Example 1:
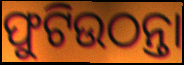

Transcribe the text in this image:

ଫୁଟିଉଠନ୍ତା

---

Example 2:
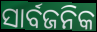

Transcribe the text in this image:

ସାର୍ବଜନିକ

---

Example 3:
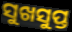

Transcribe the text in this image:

ସୁଖସୁପ୍ତ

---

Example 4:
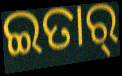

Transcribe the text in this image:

ଇତାର୍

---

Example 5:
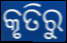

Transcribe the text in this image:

କୃତିରୁ